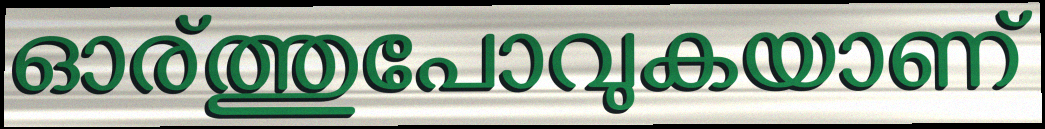
ഓര്ത്തുപോവുകയാണ്